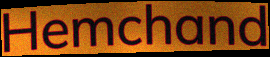
Hemchand